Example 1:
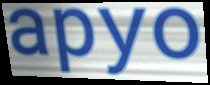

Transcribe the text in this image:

apyo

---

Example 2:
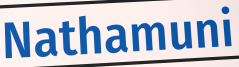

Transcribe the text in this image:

Nathamuni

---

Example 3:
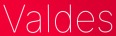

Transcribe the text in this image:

Valdes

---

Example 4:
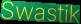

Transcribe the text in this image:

Swastik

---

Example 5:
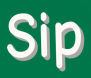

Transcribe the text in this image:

Sip